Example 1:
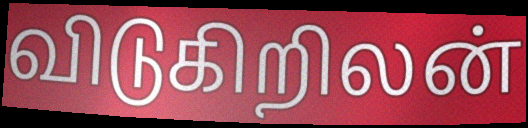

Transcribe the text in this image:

விடுகிறிலன்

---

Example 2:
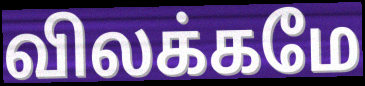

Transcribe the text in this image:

விலக்கமே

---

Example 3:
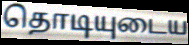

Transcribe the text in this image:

தொடியுடைய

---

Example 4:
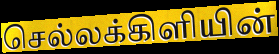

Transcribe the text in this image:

செல்லக்கிளியின்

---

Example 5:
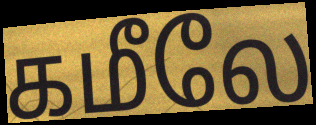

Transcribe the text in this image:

கமீலே